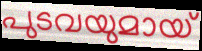
പുടവയുമായ്